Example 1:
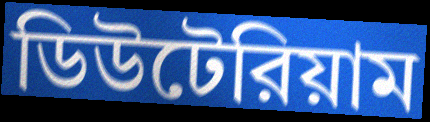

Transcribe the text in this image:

ডিউটেরিয়াম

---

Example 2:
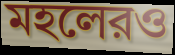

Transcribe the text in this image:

মহলেরও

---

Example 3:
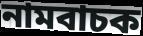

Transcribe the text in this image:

নামবাচক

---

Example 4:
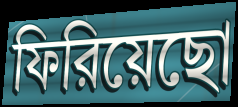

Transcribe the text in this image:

ফিরিয়েছো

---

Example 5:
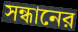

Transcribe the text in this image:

সন্ধানের